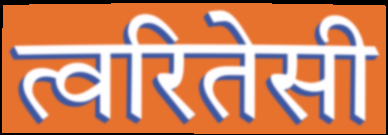
त्वरितेसी